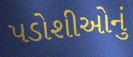
પડોશીઓનું